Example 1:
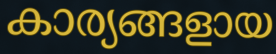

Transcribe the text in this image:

കാര്യങ്ങളായ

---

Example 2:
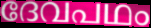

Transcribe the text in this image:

ദേവപഥം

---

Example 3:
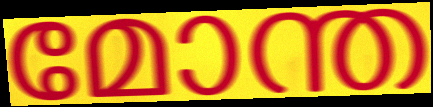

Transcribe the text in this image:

മോന്ത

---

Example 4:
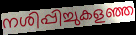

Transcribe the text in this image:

നശിപ്പിച്ചുകളഞ്ഞ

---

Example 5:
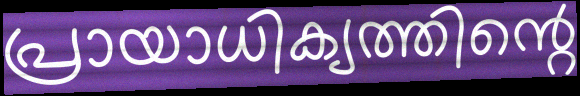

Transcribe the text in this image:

പ്രായാധിക്യത്തിന്റെ